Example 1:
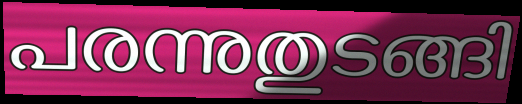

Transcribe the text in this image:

പരന്നുതുടങ്ങി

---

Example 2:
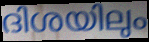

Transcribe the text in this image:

ദിശയിലും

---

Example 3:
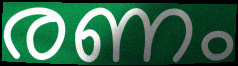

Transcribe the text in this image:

രണം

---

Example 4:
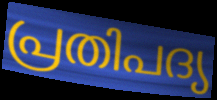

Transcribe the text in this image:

പ്രതിപദ്യ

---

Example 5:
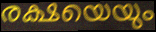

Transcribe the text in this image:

രക്ഷയെയും